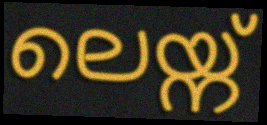
ലെയ്ന്